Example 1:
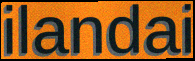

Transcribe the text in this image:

ilandai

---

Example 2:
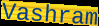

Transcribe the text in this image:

Vashram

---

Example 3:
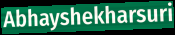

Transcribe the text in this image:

Abhayshekharsuri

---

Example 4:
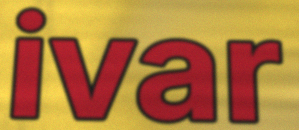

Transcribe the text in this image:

ivar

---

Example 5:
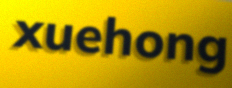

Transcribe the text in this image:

xuehong